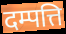
दम्पत्ति